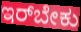
ಇರ್‌ಬೇಕು